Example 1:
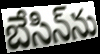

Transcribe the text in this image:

బేసిన్‌ను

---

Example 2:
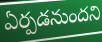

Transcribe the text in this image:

ఏర్పడనుందని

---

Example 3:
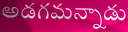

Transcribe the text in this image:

అడగమన్నాడు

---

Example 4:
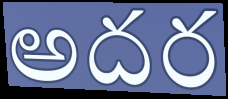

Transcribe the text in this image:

అదర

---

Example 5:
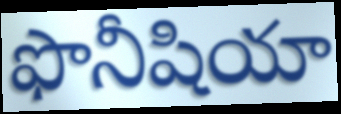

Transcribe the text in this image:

ఫొనీషియా